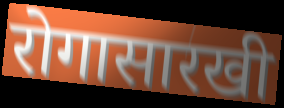
रोगासारखी